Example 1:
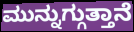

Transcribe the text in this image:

ಮುನ್ನುಗ್ಗುತ್ತಾನೆ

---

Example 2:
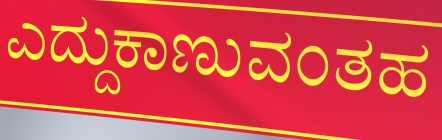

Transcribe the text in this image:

ಎದ್ದುಕಾಣುವಂತಹ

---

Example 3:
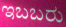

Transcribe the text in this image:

ಇಬಬರು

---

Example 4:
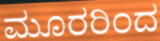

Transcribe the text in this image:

ಮೂರರಿಂದ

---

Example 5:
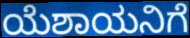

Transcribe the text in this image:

ಯೆಶಾಯನಿಗೆ